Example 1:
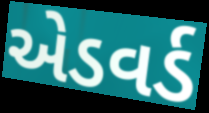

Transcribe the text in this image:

એડવર્ડ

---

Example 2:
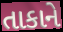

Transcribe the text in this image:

તાકાને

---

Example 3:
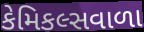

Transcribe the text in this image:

કેમિકલ્સવાળા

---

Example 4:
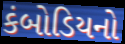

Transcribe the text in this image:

કંબોડિયનો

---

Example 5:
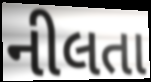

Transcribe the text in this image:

નીલતા